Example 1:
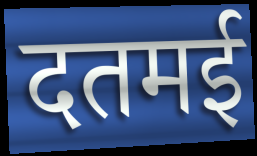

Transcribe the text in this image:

दतमई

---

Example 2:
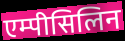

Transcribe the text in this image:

एम्पीसिलिन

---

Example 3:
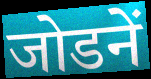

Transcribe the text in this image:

जोडनें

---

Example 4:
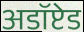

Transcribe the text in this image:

अडॉप्टेड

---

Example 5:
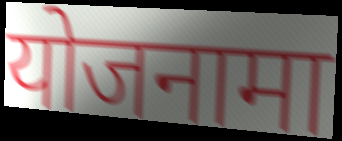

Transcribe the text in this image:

योजनामा